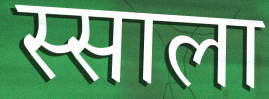
स्साला